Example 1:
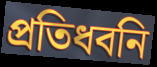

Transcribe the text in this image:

প্রতিধবনি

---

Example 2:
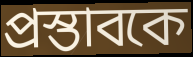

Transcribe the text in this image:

প্রস্তাবকে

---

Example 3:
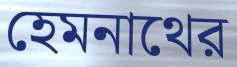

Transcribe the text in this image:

হেমনাথের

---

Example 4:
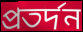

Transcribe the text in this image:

প্রতর্দন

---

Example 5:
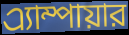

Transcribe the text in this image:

এ্যাম্পায়ার